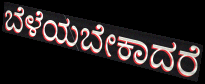
ಬೆಳೆಯಬೇಕಾದರೆ